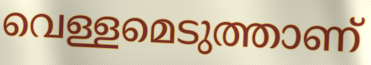
വെള്ളമെടുത്താണ്